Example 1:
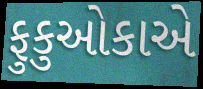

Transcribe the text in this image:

ફુકુઓકાએ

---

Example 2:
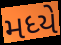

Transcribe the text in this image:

મધ્યે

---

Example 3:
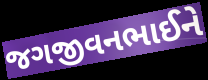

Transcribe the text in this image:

જગજીવનભાઈને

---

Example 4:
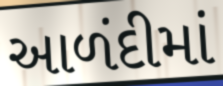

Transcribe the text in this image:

આળંદીમાં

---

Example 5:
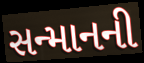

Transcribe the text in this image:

સન્માનની